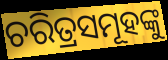
ଚରିତ୍ରସମୂହଙ୍କୁ